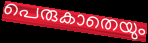
പെരുകാതെയും